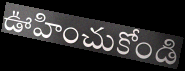
ఊహించుకోండి